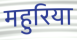
महुरिया